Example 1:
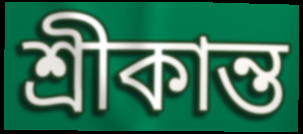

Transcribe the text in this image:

শ্রীকান্ত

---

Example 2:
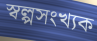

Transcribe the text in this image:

স্বল্পসংখ্যক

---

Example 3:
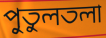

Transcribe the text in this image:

পুতুলতলা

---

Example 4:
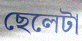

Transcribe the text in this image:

ছেলেটা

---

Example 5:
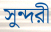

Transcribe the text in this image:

সুন্দরী